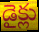
డైక్లు